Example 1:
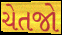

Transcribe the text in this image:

ચેતજો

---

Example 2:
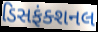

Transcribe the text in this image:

ડિસફંક્શનલ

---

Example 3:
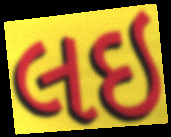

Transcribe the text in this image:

લઇ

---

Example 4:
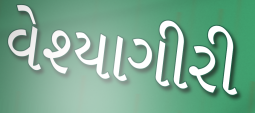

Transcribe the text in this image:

વેશ્યાગીરી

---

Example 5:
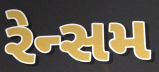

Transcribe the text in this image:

રેન્સમ